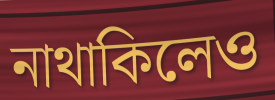
নাথাকিলেও